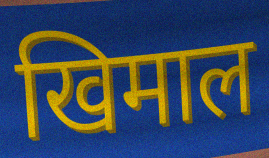
खिमाल